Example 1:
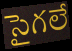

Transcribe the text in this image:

సైగలే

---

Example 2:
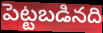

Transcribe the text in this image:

పెట్టబడినది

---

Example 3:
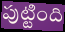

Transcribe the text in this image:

పుట్టింది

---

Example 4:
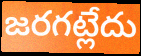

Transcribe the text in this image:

జరగట్లేదు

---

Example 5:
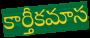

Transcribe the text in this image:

కార్తీకమాస